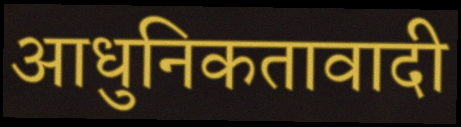
आधुनिकतावादी